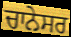
ਚਾਨੇਸਰ